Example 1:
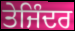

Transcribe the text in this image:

ਤੇਜਿੰਦਰ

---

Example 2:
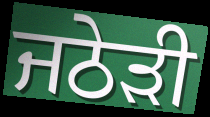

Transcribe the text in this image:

ਜਠੇੜੀ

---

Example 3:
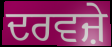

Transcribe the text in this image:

ਦਰਵਜ਼ੇ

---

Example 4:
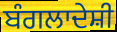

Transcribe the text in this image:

ਬੰਗਲਾਦੇਸ਼ੀ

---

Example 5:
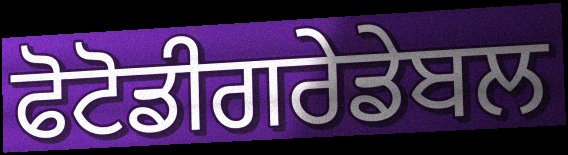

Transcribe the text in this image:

ਫੋਟੋਡੀਗਰੇਡੇਬਲ